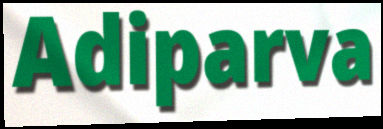
Adiparva